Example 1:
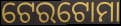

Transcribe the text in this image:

ଟେରଟୋମା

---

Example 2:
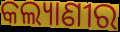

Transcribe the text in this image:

କଲ୍ୟାଣୀର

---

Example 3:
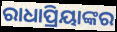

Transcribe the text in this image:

ରାଧାପ୍ରିୟାଙ୍କର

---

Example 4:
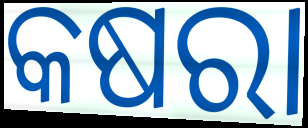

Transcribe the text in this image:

କଷରା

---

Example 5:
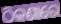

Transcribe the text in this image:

ଠିକଣାରେ